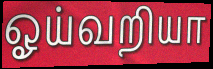
ஓய்வறியா